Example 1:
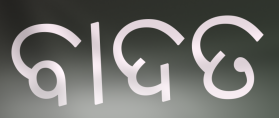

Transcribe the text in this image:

ବାଦତ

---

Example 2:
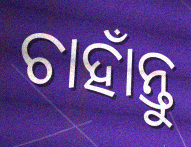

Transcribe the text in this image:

ଚାହାଁନ୍ତୁ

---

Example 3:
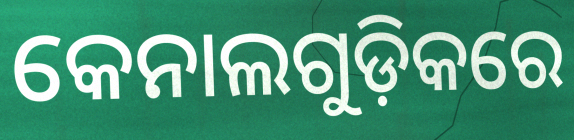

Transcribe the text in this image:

କେନାଲଗୁଡ଼ିକରେ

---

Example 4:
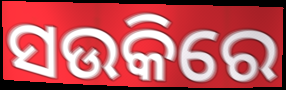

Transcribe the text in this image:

ସଉକିରେ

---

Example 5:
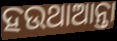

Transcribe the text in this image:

ହଉଥାଆନ୍ତା